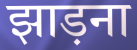
झाड़ना